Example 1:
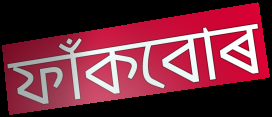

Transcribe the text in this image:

ফাঁকবোৰ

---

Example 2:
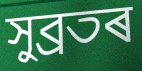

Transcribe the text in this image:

সুব্ৰতৰ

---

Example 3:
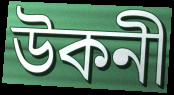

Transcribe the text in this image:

উকনী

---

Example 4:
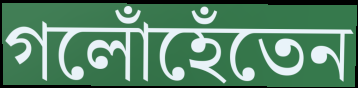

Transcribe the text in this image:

গলোঁহেঁতেন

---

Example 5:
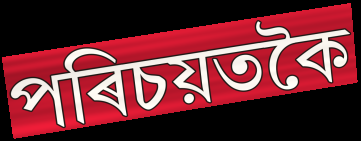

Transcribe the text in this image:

পৰিচয়তকৈ